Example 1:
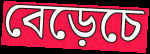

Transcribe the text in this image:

বেড়েচে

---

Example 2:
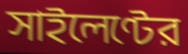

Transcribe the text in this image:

সাইলেণ্টের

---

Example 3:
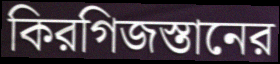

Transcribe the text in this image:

কিরগিজস্তানের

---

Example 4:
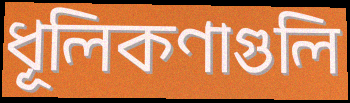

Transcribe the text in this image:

ধূলিকণাগুলি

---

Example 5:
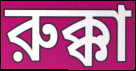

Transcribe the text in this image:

রুক্কা